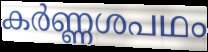
കർണ്ണശപഥം